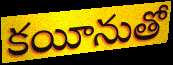
కయీనుతో